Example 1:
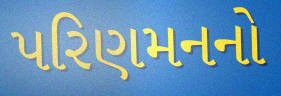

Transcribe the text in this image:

પરિણમનનો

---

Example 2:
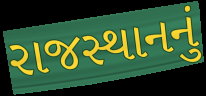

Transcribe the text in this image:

રાજસ્થાનનું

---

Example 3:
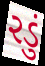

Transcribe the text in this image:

રડું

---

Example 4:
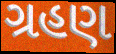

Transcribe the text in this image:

ગ્રહણ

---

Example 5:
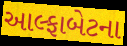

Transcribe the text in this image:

આલ્ફાબેટના